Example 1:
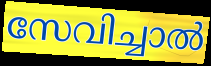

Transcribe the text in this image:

സേവിച്ചാൽ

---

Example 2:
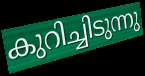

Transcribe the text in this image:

കുറിച്ചിടുന്നു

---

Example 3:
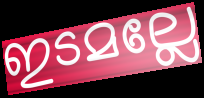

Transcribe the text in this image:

ഇടമല്ലേ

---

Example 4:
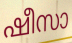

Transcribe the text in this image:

ഷീസാ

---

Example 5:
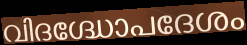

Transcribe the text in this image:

വിദഗ്ദ്ധോപദേശം